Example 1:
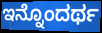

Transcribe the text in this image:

ಇನ್ನೊಂದರ್ಥ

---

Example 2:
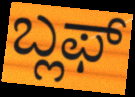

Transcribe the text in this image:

ಬ್ಲಫ್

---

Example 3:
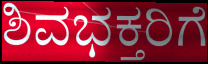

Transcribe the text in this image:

ಶಿವಭಕ್ತರಿಗೆ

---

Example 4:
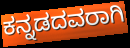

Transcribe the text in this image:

ಕನ್ನಡದವರಾಗಿ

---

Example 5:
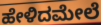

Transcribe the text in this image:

ಹೇಳಿದಮೇಲೆ